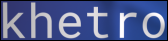
khetro